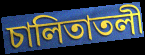
চালিতাতলী